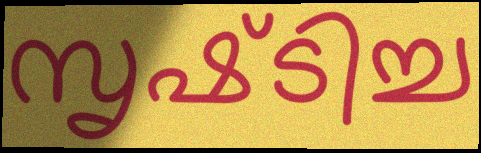
സൃഷ്‌ടിച്ച